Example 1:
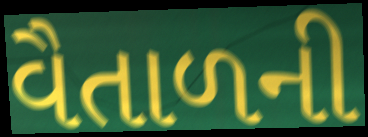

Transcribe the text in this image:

વૈતાળની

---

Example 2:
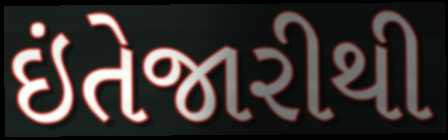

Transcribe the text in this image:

ઇંતેજારીથી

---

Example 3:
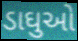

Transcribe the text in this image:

ડાઘુઓ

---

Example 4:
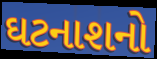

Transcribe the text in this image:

ઘટનાશનો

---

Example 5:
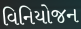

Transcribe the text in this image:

વિનિયોજન